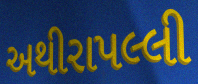
અથીરાપલ્લી